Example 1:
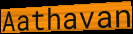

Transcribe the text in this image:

Aathavan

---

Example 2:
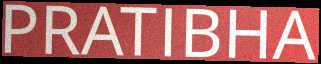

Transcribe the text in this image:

PRATIBHA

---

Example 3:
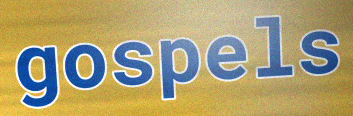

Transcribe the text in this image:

gospels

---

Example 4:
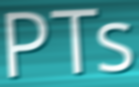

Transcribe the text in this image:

PTs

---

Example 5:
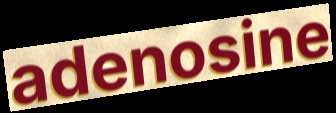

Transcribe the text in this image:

adenosine